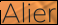
Alier